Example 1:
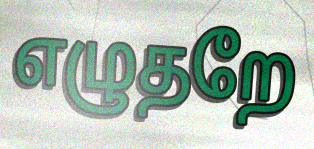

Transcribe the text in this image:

எழுதறே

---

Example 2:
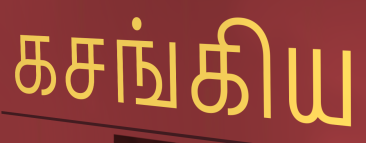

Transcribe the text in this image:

கசங்கிய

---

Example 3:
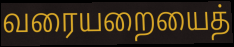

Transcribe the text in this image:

வரையறையைத்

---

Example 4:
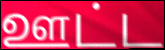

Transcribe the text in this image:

ஊட்ட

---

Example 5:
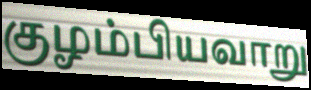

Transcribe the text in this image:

குழம்பியவாறு